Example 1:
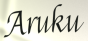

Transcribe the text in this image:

Aruku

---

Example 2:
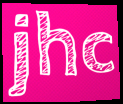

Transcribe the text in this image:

jhc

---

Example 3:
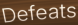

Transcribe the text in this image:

Defeats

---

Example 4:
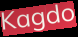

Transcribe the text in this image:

Kagdo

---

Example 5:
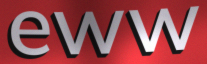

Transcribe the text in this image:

eww